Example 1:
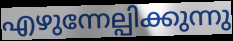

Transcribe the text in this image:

എഴുന്നേല്പിക്കുന്നു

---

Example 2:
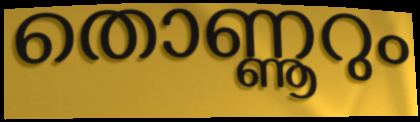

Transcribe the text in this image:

തൊണ്ണൂറും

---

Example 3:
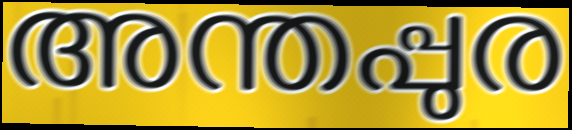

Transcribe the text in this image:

അന്തപ്പുര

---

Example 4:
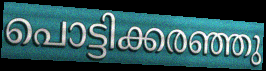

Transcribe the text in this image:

പൊട്ടിക്കരഞ്ഞു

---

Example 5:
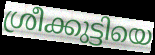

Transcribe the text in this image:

ശ്രീക്കുട്ടിയെ